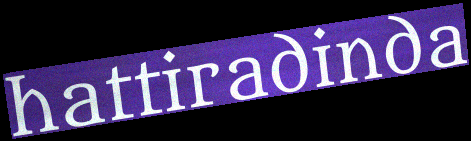
hattiradinda